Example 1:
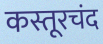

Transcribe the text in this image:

कस्तूरचंद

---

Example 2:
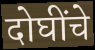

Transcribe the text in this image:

दोघींचे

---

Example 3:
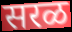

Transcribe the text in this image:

सरळ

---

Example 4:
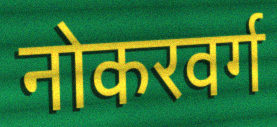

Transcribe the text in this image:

नोकरवर्ग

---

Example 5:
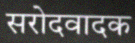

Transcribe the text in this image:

सरोदवादक